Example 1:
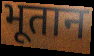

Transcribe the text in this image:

भूतान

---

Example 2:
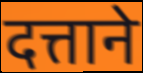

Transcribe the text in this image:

दत्ताने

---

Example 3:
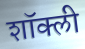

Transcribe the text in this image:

शॉक्ली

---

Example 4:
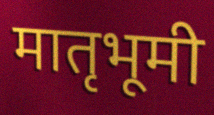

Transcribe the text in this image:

मातृभूमी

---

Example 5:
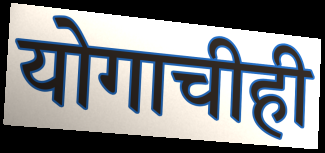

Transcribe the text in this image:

योगाचीही